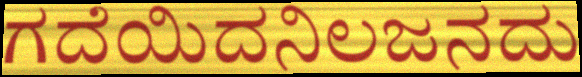
ಗದೆಯಿದನಿಲಜನದು